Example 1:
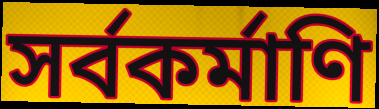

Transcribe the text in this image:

সর্বকর্মাণি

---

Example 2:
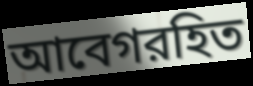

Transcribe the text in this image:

আবেগরহিত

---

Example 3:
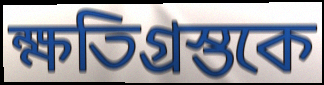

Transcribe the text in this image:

ক্ষতিগ্রস্তকে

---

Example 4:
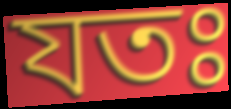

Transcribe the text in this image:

যতঃ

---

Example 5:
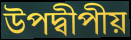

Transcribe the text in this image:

উপদ্বীপীয়